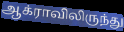
ஆக்ராவிலிருந்து